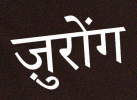
ज़ुरोंग